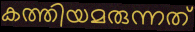
കത്തിയമരുന്നത്